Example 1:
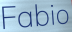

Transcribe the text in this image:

Fabio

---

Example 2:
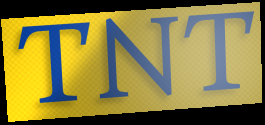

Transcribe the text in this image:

TNT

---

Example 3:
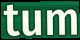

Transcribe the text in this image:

tum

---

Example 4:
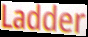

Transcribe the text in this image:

Ladder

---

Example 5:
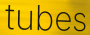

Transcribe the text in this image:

tubes